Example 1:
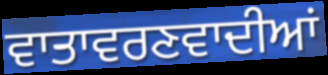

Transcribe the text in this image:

ਵਾਤਾਵਰਣਵਾਦੀਆਂ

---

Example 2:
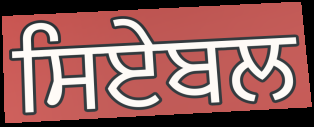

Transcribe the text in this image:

ਸਿਏਬਲ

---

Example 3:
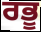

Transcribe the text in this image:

ਰਭੂ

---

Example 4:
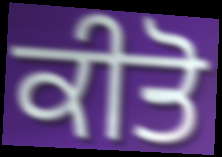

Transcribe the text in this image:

ਕੀਤੋ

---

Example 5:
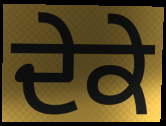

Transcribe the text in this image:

ਦੇਕੇ